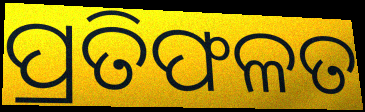
ପ୍ରତିଫଳତ